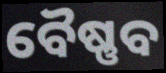
ବୈଷ୍ଣବ